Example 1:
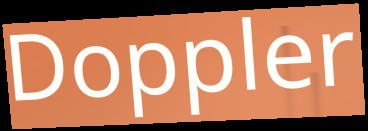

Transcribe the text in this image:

Doppler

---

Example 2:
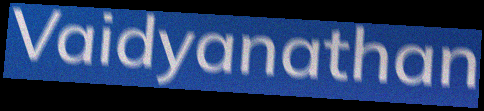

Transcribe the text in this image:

Vaidyanathan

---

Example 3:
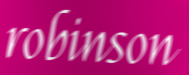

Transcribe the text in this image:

robinson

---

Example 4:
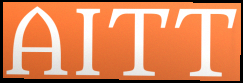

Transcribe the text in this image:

AITT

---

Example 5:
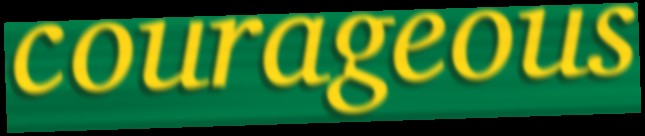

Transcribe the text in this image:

courageous